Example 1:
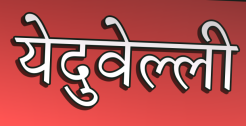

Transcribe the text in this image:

येदुवेल्ली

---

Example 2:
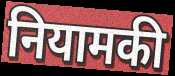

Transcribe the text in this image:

नियामकी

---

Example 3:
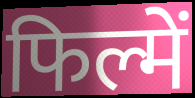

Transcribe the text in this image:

फिल्‍में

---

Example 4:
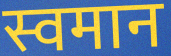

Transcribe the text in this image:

स्वमान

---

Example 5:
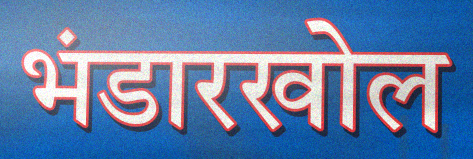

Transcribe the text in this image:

भंडारखोल